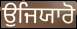
ਉਜਿਯਾਰੋ